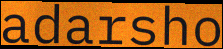
adarsho